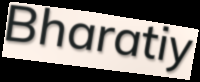
Bharatiy